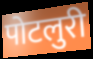
पोटलुरी